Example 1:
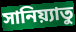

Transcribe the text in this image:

সানিয়্যাতু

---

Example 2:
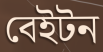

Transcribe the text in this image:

বেইটন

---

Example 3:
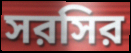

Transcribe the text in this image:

সরসির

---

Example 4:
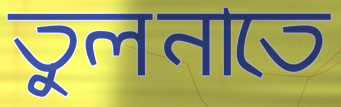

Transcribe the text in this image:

তুলনাতে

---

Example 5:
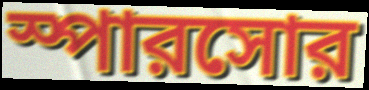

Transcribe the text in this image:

স্পারসোর